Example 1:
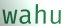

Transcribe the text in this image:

wahu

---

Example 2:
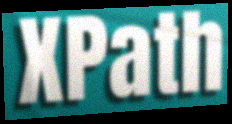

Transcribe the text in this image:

XPath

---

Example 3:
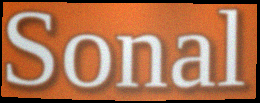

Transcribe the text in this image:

Sonal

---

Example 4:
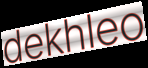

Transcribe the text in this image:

dekhleo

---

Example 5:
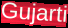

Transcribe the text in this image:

Gujarti